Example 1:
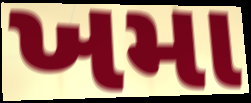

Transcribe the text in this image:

ખમા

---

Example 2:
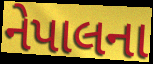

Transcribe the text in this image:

નેપાલના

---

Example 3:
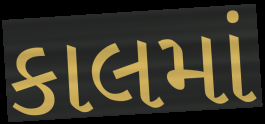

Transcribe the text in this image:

કાલમાં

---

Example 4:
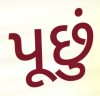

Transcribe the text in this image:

પૂછું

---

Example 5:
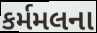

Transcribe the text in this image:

કર્મમલના